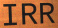
IRR